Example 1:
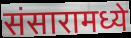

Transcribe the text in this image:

संसारामध्ये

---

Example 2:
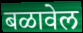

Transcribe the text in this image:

बळावेल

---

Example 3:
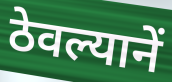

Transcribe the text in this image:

ठेवल्यानें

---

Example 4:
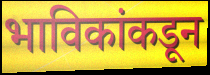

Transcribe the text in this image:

भाविकांकडून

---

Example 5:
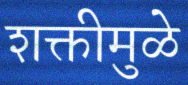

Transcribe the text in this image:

शक्तीमुळे